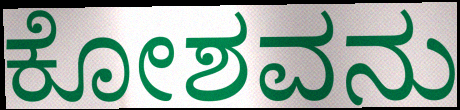
ಕೋಶವನು